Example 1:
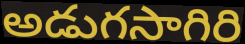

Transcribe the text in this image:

అడుగసాగిరి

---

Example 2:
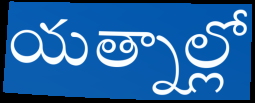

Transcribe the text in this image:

యత్నాల్లో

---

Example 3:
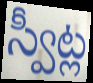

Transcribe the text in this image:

స్వీట్ల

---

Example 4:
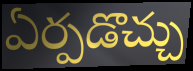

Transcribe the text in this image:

ఏర్పడొచ్చు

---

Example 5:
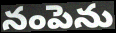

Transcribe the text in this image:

నంపెను